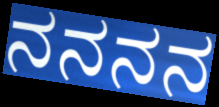
ನನನನ